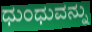
ಧುಂಧುವನ್ನು